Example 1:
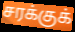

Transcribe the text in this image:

சரக்குக்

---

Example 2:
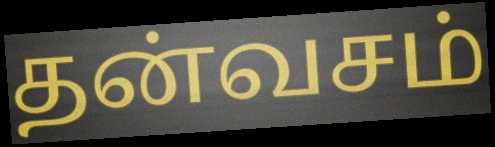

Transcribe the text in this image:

தன்வசம்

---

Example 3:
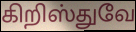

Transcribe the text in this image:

கிறிஸ்துவே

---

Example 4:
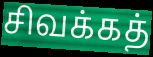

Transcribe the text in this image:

சிவக்கத்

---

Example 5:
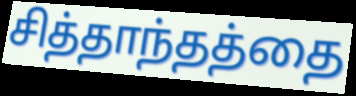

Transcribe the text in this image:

சித்தாந்தத்தை